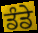
ਡੰਡੇ